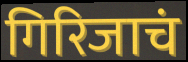
गिरिजाचं